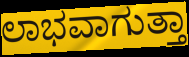
ಲಾಭವಾಗುತ್ತಾ